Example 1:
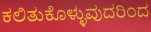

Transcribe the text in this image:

ಕಲಿತುಕೊಳ್ಳುವುದರಿಂದ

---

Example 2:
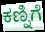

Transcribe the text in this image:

ಕಣ್ನಿಗೆ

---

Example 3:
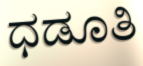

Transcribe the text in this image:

ಧಡೂತಿ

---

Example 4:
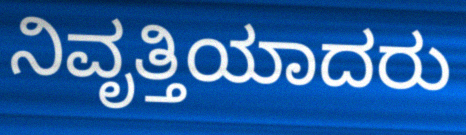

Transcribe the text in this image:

ನಿವೃತ್ತಿಯಾದರು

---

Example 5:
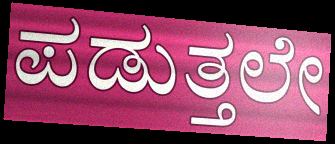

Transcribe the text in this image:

ಪಡುತ್ತಲೇ